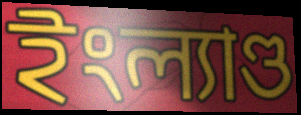
ইংল্যাণ্ড